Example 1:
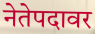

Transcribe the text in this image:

नेतेपदावर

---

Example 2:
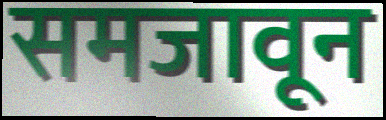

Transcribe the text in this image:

समजावून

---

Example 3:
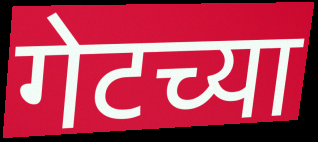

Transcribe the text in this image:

गेटच्या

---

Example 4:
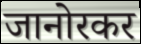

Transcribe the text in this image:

जानोरकर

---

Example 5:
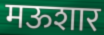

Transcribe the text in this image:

मऊशार